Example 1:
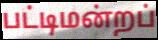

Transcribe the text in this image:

பட்டிமன்றப்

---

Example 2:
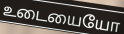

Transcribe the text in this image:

உடையையோ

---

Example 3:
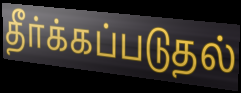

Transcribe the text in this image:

தீர்க்கப்படுதல்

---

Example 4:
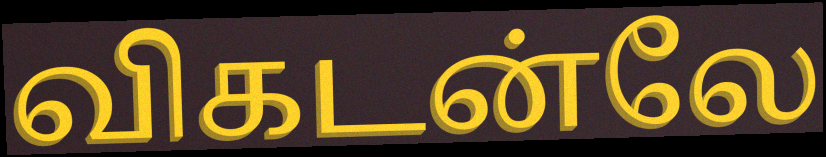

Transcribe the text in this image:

விகடன்லே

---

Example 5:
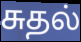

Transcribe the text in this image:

சுதல்